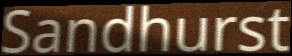
Sandhurst